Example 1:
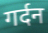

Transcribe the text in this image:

गर्दन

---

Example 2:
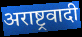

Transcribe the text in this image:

अराष्ट्रवादी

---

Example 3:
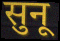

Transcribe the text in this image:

सुनू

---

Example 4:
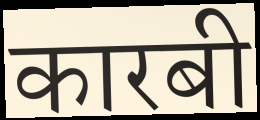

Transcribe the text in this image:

कारबी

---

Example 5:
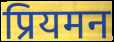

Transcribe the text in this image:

प्रियमन